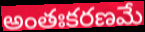
అంతఃకరణమే